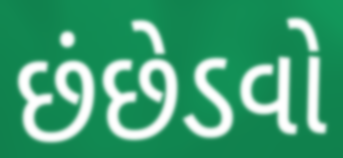
છંછેડવો